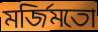
মর্জিমতো